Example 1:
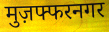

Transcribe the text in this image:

मुज़फ्फरनगर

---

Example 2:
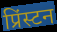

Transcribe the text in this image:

प्रिंस्टन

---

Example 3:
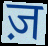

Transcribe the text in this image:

ज़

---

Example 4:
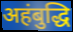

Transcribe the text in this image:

अहंबुद्धि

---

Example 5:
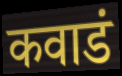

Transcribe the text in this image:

कवाडं